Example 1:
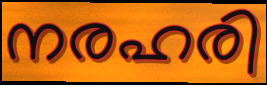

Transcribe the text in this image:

നരഹരി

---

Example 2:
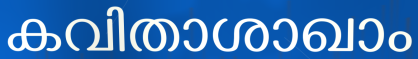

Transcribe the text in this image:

കവിതാശാഖാം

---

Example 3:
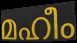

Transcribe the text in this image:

മഹീം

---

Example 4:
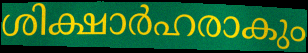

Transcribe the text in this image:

ശിക്ഷാർഹരാകും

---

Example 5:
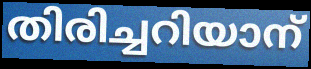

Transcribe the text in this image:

തിരിച്ചറിയാന്